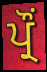
ਪ੍ਰੌਂ